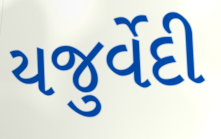
યજુર્વેદી